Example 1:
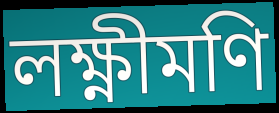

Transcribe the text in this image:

লক্ষ্ণীমণি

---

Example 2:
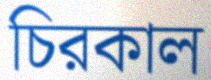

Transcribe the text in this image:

চিরকাল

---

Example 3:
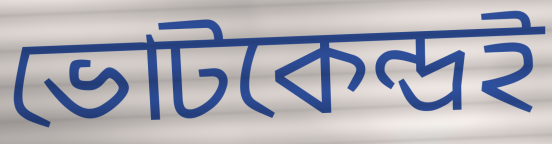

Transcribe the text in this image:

ভোটকেন্দ্রই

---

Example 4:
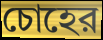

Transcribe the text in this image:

চোহের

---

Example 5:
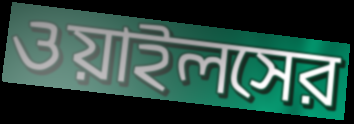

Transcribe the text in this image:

ওয়াইলসের